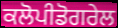
ਕਲੋਪੀਡੋਗਰੇਲ